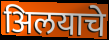
अिलयाचे